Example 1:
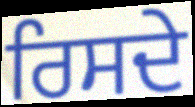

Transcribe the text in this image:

ਰਿਸਦੇ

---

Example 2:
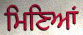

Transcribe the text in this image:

ਮਿਣਿਆਂ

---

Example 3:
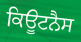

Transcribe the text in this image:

ਕਿਊਟਨੈਸ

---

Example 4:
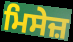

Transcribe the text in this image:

ਮਿਸੇਜ਼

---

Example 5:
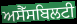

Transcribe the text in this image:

ਅਸੈੱਸਬਿਲਟੀ